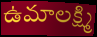
ఉమాలక్ష్మి